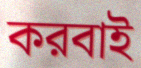
করবাই